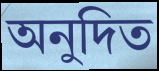
অনুদিত